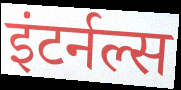
इंटर्नल्स